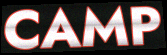
CAMP